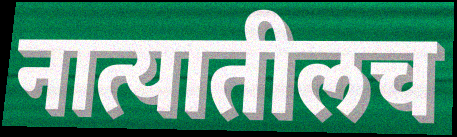
नात्यातीलच